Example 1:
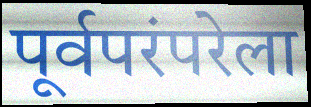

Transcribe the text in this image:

पूर्वपरंपरेला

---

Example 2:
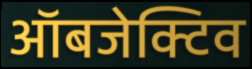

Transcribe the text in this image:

ऑबजेक्टिव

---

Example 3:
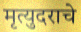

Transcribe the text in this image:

मृत्युदराचे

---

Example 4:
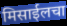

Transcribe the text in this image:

मिसाईलचा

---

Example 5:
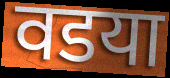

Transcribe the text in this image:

वडया